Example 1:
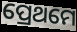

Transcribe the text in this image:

ପ୍ରେଥମେ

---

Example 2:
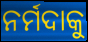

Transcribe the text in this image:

ନର୍ମଦାକୁ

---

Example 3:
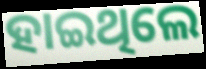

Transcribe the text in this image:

ହାଇଥିଲେ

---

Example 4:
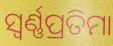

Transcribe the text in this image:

ସ୍ୱର୍ଣ୍ଣପ୍ରତିମା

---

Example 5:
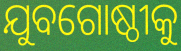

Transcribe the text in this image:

ଯୁବଗୋଷ୍ଠୀକୁ